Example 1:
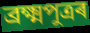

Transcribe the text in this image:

ব্ৰক্ষ্মপুত্ৰৰ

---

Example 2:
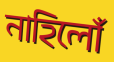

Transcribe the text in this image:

নাহিলোঁ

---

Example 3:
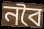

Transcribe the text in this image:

নবৈ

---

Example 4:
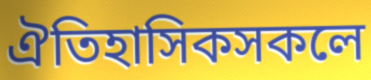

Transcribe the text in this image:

ঐতিহাসিকসকলে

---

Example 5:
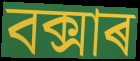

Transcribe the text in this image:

বক্সাৰ